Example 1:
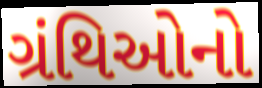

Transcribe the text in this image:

ગ્રંથિઓનો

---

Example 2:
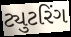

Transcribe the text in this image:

ટ્યુટરિંગ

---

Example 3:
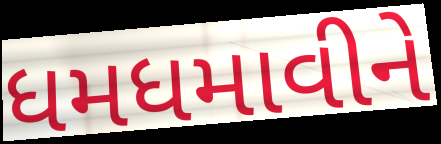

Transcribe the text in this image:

ધમધમાવીને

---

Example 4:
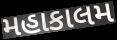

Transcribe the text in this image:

મહાકાલમ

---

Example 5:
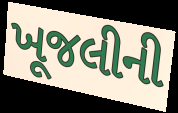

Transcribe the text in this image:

ખૂજલીની